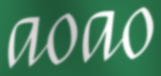
aoao